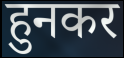
हुनकर